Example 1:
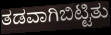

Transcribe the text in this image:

ತಡವಾಗಿಬಿಟ್ಟಿತು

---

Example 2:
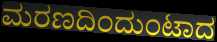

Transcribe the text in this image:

ಮರಣದಿಂದುಂಟಾದ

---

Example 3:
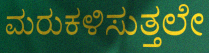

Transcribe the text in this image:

ಮರುಕಳಿಸುತ್ತಲೇ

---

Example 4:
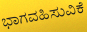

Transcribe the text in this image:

ಭಾಗವಹಿಸುವಿಕೆ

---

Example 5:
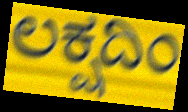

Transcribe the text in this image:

ಲಕ್ಷದಿಂ